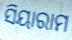
ସିୟାରାମ